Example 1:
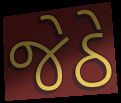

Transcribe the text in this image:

જેઠે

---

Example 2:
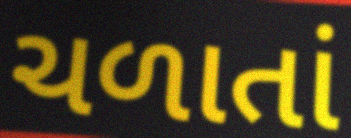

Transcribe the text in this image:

ચળાતાં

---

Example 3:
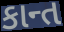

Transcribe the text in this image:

કાન્ત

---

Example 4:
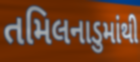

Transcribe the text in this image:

તમિલનાડુમાંથી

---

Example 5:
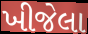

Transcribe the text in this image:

ખીજેલા